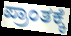
ಪ್ರಾಂತಕ್ಕೆ